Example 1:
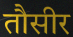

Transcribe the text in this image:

तौसीर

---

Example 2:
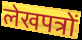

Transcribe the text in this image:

लेखपत्रों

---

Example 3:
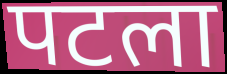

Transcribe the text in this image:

पटला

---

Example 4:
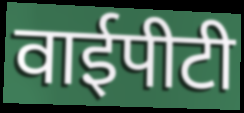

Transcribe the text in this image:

वाईपीटी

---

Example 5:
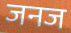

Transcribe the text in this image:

जनज